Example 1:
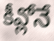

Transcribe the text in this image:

కీవ్లోనే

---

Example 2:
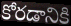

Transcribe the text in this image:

కోరడానికి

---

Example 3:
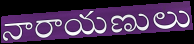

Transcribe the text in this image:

నారాయణులు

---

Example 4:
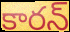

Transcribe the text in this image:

కారన్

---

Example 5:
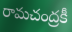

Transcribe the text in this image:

రామచంద్రకీ